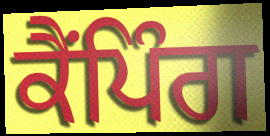
ਕੈਂਪਿੰਗ